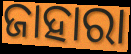
ଜାହାରା